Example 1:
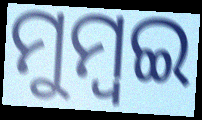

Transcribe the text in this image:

ମୁମ୍ବଇ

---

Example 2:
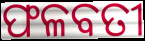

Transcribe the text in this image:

ଫଳବତୀ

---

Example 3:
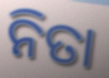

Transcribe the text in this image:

ନିତା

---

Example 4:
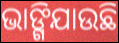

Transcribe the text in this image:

ଭାଙ୍ଗିଯାଉଛି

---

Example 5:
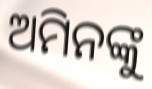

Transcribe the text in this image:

ଅମିନଙ୍କୁ